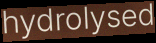
hydrolysed